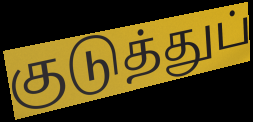
குடுத்துப்